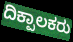
ದಿಕ್ಪಾಲಕರು